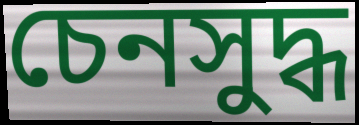
চেনসুদ্ধ